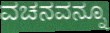
ವಚನವನ್ನೂ